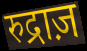
रुद्राज़